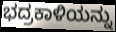
ಭದ್ರಕಾಳಿಯನ್ನು